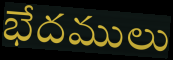
భేదములు